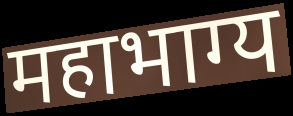
महाभाग्य